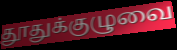
தூதுக்குழுவை